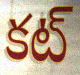
కట్